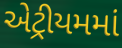
એટ્રીયમમાં